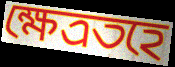
ক্ষেত্ৰতহে